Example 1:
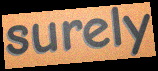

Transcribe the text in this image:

surely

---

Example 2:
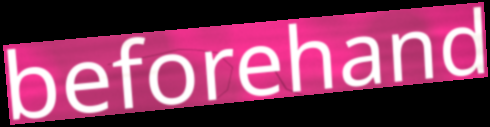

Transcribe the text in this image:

beforehand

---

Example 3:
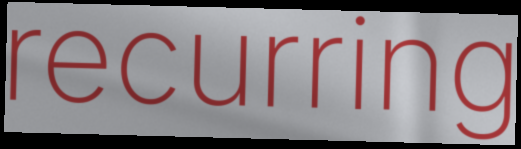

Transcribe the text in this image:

recurring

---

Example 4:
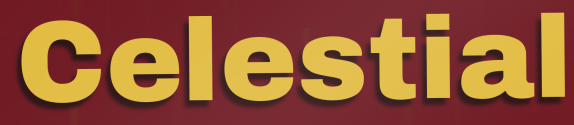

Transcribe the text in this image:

Celestial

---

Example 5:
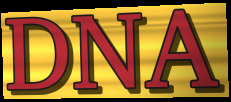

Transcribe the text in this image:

DNA